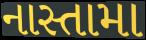
નાસ્તામા